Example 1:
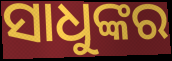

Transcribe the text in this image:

ସାଧୁଙ୍କର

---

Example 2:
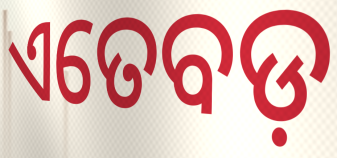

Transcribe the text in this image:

ଏତେବଡ଼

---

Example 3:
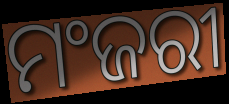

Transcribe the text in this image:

ମଂଜରୀ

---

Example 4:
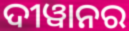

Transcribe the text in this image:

ଦୀୱାନର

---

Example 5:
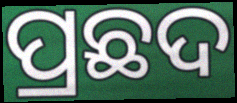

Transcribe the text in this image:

ପ୍ରଛଦ